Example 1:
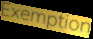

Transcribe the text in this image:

Exemption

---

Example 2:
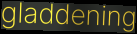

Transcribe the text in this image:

gladdening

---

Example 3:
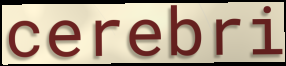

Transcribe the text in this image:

cerebri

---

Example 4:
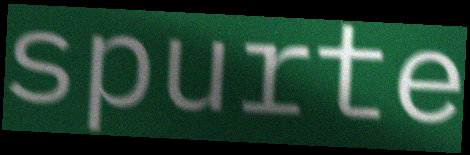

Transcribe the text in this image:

spurte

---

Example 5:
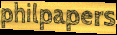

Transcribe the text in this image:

philpapers